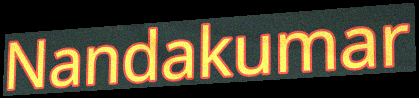
Nandakumar